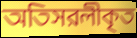
অতিসরলীকৃত